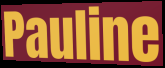
Pauline